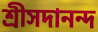
শ্রীসদানন্দ